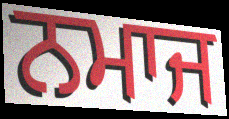
ਨਮਾਜ